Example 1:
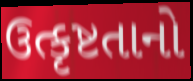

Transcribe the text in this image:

ઉત્કૃષ્ટતાનો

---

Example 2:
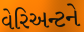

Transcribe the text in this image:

વેરિઅન્ટને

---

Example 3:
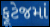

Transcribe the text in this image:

ફૂટેજમાં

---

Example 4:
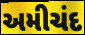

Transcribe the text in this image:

અમીચંદ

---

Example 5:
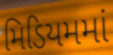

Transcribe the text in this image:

મિડિયમમાં